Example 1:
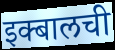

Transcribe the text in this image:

इक्बालची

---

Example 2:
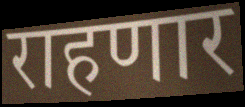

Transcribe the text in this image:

राहणार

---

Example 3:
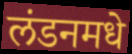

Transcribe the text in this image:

लंडनमधे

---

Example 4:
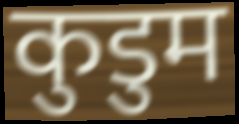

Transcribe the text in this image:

कुडुम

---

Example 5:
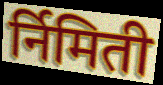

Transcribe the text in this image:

र्निमिती